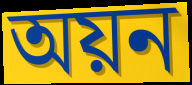
অয়ন